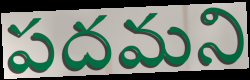
పదమని